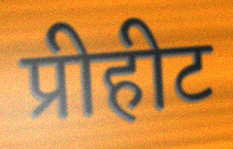
प्रीहीट